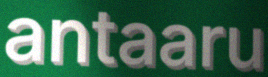
antaaru